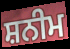
ਸ਼ਨੀਮ